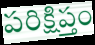
పరిక్షిప్తం